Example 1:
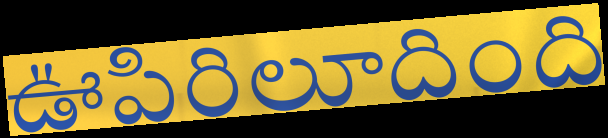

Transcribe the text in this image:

ఊపిరిలూదింది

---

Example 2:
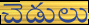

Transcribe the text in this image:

చెడులు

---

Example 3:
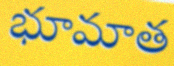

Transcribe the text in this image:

భూమాత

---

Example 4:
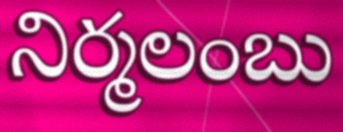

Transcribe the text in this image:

నిర్మలంబు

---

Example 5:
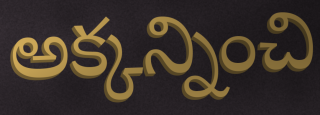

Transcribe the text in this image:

అక్కన్నించి